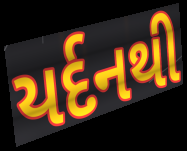
યર્દનથી